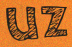
uz